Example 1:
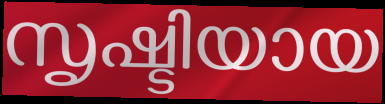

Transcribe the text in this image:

സൃഷ്ടിയായ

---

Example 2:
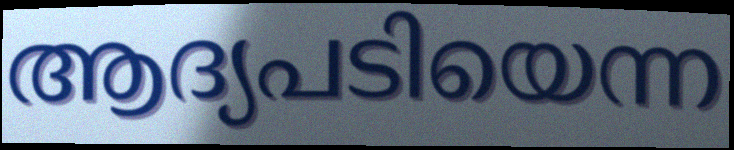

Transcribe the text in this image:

ആദ്യപടിയെന്ന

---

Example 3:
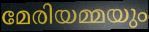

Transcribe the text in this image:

മേരിയമ്മയും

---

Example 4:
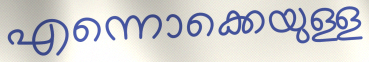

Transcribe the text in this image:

എന്നൊക്കെയുള്ള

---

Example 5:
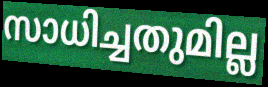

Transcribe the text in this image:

സാധിച്ചതുമില്ല